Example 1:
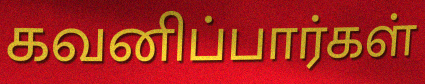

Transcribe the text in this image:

கவனிப்பார்கள்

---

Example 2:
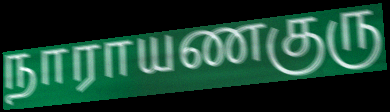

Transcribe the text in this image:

நாராயணகுரு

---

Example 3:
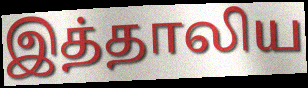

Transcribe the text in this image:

இத்தாலிய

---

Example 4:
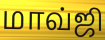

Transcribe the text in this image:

மாவ்ஜி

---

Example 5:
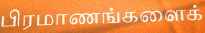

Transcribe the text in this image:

பிரமாணங்களைக்